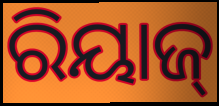
ରିୟାଜ୍